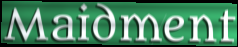
Maidment